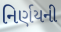
નિર્ણયની